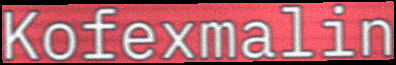
Kofexmalin